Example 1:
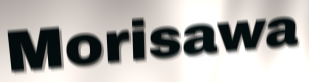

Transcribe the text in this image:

Morisawa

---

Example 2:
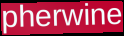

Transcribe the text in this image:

pherwine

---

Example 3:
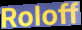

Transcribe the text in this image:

Roloff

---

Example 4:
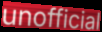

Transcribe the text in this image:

unofficial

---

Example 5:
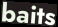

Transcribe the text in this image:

baits